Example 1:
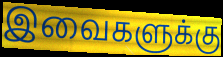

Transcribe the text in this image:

இவைகளுக்கு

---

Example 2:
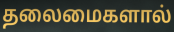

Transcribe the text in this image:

தலைமைகளால்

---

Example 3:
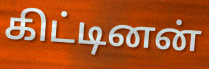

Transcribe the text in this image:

கிட்டினன்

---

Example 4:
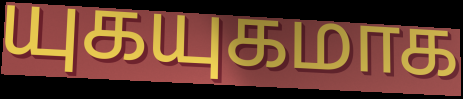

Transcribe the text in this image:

யுகயுகமாக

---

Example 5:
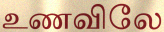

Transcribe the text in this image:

உணவிலே